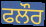
ਫਲੌਰ